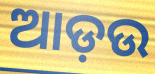
ଆଡ଼ଉ